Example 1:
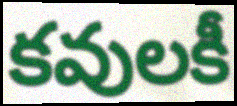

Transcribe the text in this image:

కవులకీ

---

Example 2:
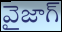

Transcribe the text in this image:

వైజాగ్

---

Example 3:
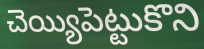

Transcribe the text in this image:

చెయ్యిపెట్టుకొని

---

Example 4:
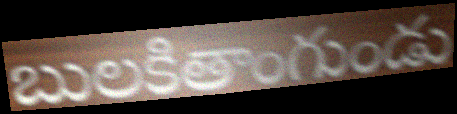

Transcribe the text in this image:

బులకితాంగుండు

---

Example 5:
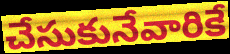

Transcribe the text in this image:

చేసుకునేవారికే